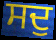
ਸਦੁ